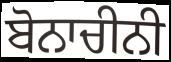
ਬੋਨਾਚੀਨੀ